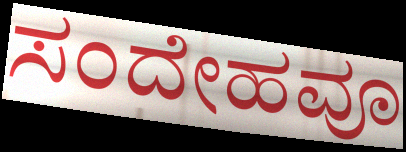
ಸಂದೇಹವೂ